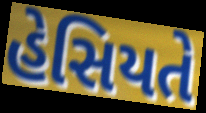
હેસિયતે